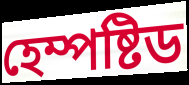
হেম্পষ্টিড